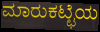
ಮಾರುಕಟ್ಟೆಯ